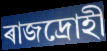
ৰাজদ্ৰোহী